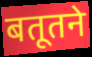
बतूतने